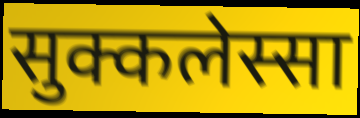
सुक्कलेस्सा